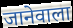
जानेवाला